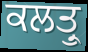
ਕਲਤ੍ਰੁ